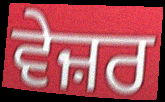
ਵੇਜ਼ਰ